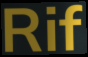
Rif